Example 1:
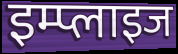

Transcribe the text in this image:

इम्प्लाइज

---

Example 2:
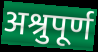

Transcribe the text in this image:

अश्रुपूर्ण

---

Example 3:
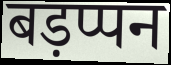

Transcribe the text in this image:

बड़प्पन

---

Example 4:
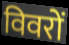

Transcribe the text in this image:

विवरों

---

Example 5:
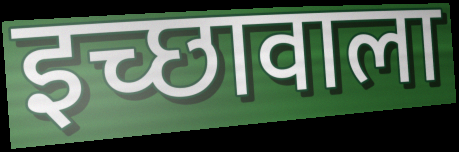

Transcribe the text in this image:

इच्छावाला